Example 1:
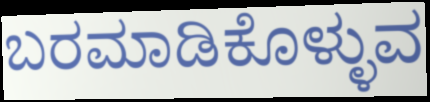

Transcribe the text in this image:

ಬರಮಾಡಿಕೊಳ್ಳುವ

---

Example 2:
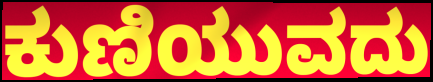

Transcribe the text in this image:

ಕುಣಿಯುವದು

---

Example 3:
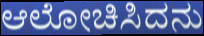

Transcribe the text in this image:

ಆಲೋಚಿಸಿದನು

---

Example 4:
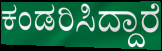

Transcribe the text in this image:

ಕಂಡರಿಸಿದ್ದಾರೆ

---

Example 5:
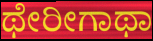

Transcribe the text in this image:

ಥೇರೀಗಾಥಾ